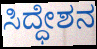
ಸಿದ್ಧೇಶನ